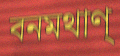
বনমথাণ্